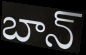
బాన్